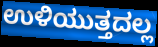
ಉಳಿಯುತ್ತದಲ್ಲ